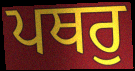
ਪਥਰੁ